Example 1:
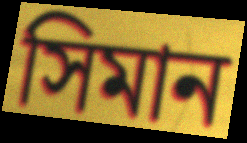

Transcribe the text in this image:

সিমান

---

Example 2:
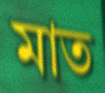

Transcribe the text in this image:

মাত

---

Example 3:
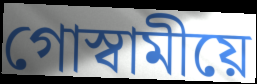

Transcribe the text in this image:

গোস্বামীয়ে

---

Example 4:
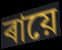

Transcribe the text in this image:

ৰায়ে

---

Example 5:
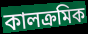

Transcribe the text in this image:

কালক্ৰমিক